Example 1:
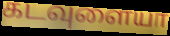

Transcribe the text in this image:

கடவுளையா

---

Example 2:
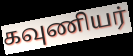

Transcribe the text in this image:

கவுணியர்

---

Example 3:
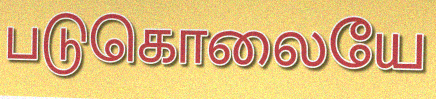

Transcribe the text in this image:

படுகொலையே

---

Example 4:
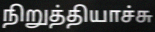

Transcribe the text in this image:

நிறுத்தியாச்சு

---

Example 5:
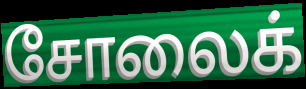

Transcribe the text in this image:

சோலைக்